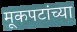
मूकपटांच्या